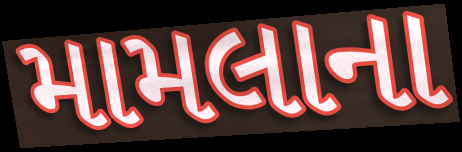
મામલાના